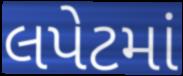
લપેટમાં